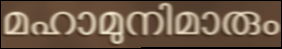
മഹാമുനിമാരും